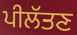
ਪੀਲੱਤਣ